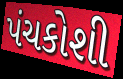
પંચકોશી